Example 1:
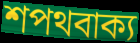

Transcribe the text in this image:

শপথবাক্য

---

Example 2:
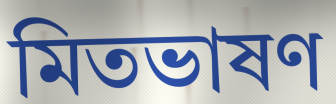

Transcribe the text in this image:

মিতভাষণ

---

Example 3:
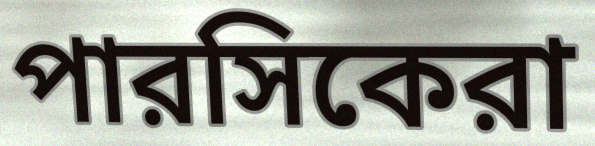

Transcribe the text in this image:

পারসিকেরা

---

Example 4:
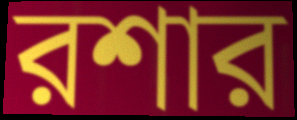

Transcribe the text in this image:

রশার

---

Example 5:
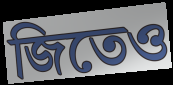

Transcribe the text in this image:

জিতেও